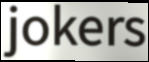
jokers